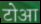
टोआ